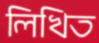
লিখিত